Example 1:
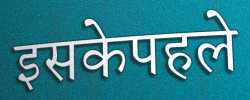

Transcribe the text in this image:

इसकेपहले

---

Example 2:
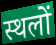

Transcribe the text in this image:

स्थलों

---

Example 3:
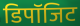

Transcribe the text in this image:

डिपॉजिट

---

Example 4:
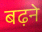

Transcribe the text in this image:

बढ़ने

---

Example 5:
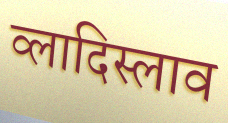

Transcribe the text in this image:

व्लादिस्लाव